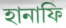
হানাফি